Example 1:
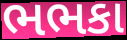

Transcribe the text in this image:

ભભકા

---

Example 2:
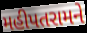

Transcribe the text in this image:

મહીપતરામને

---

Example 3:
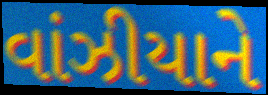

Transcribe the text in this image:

વાંઝીયાને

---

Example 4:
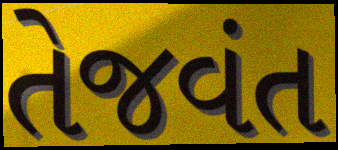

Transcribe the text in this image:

તેજવંત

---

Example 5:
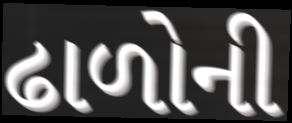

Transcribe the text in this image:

ઢાળોની